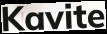
Kavite